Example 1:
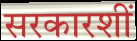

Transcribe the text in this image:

सरकारशीं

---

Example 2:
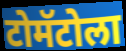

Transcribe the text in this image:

टोमॅटोला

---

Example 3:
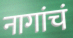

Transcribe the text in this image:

नागांचं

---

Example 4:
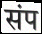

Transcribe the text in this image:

संप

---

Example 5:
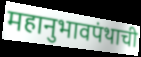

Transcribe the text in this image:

महानुभावपंथाची